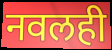
नवलही